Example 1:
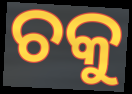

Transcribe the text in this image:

ଚକୁ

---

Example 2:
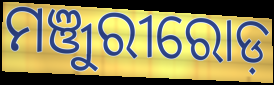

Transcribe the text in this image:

ମଞ୍ଜୁରୀରୋଡ଼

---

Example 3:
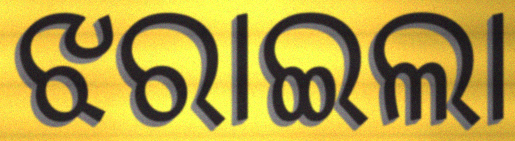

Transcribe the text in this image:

ଝରାଇଲା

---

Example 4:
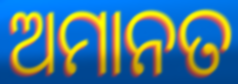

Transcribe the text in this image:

ଅମାନତ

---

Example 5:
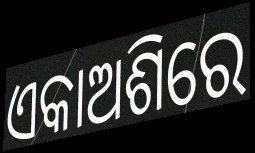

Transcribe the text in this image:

ଏକାଅଶିରେ